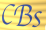
CBs